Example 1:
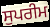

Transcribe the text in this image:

ਸੁਪਰੀਮ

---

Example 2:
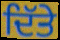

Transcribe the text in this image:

ਦਿੱਤੇ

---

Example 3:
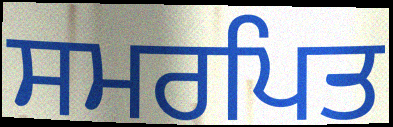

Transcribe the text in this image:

ਸਮਰਪਿਤ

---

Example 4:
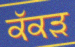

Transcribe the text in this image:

ਕੱਕੜ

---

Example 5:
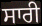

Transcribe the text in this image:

ਸਾਰੀ